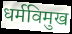
धर्मविमुख